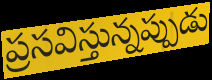
ప్రసవిస్తున్నప్పుడు